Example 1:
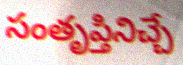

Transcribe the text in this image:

సంతృప్తినిచ్చే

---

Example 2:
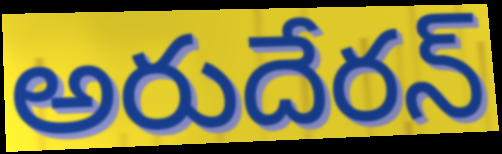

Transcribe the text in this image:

అరుదేరన్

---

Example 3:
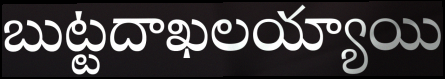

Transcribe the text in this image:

బుట్టదాఖలయ్యాయి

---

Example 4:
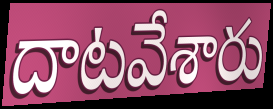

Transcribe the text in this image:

దాటవేశారు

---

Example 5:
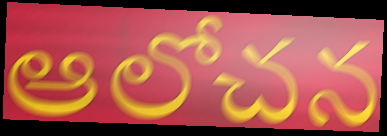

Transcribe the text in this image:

ఆలోచన